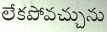
లేకపోవచ్చును